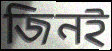
জিনই